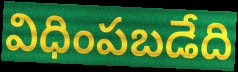
విధింపబడేది